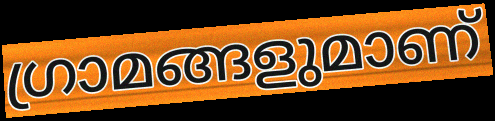
ഗ്രാമങ്ങളുമാണ്